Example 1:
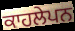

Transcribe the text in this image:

ਕਾਹਲੇਪਨ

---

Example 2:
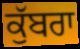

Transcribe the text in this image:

ਕੁੱਬਰਾ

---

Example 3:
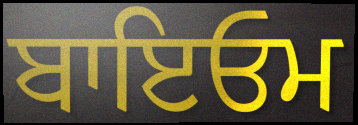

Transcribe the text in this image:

ਬਾਇਓਮ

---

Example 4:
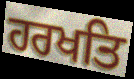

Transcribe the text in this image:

ਹਰਖਤਿ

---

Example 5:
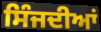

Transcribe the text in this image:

ਸਿੰਜਦੀਆਂ